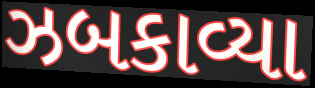
ઝબકાવ્યા